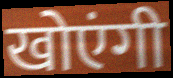
खोएंगी